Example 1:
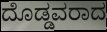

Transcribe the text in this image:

ದೊಡ್ಡವರಾದ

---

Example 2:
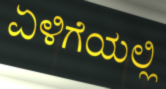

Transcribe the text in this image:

ಏಳಿಗೆಯಲ್ಲಿ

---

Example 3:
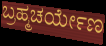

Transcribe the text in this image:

ಬ್ರಹ್ಮಚರ್ಯೇಣ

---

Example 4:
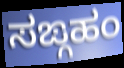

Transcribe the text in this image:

ಸಙ್ಗಹಂ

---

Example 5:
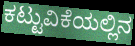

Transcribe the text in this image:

ಕಟ್ಟುವಿಕೆಯಲ್ಲಿನ